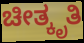
ಚೀತ್ಕೃತಿ